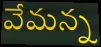
వేమన్న